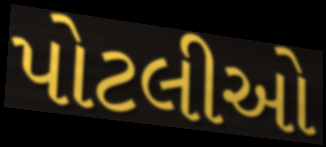
પોટલીઓ